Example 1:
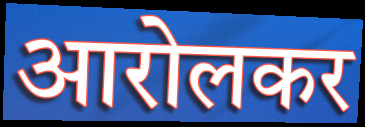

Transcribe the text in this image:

आरोलकर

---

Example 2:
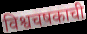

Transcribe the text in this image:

विश्वचषकाची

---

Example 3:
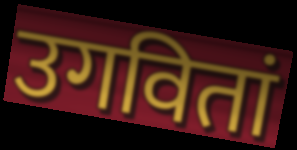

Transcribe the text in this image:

उगवितां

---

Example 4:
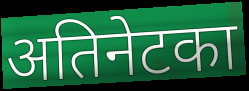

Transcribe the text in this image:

अतिनेटका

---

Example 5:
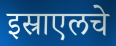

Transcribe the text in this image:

इस्राएलचे